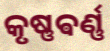
କୃଷ୍ଣଵର୍ଣ୍ଣ